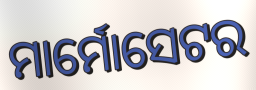
ମାର୍ମୋସେଟର